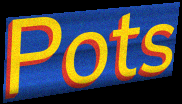
Pots